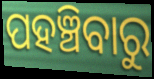
ପହଞ୍ଚିବାରୁ